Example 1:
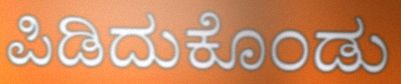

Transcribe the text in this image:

ಪಿಡಿದುಕೊಂಡು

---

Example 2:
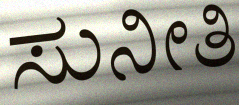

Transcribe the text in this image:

ಸುನೀತಿ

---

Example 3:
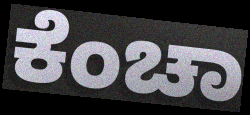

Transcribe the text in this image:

ಕೆಂಚಾ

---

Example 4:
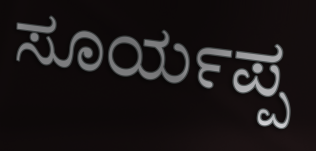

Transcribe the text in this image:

ಸೂರ್ಯಪ್ಪ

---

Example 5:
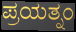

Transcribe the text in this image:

ಪ್ರಯತ್ನಂ